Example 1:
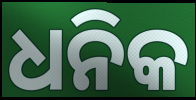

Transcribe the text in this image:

ଧନିକ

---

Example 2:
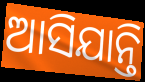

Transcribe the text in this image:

ଆସିଯାନ୍ତି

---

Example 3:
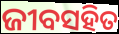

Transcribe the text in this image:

ଜୀବସହିତ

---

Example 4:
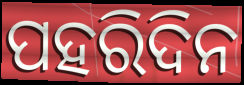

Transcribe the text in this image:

ପହରିଦିନ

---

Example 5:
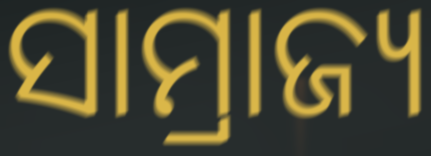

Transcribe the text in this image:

ସାମ୍ରାଜ୍ୟ